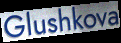
Glushkova